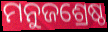
ମନୁଜଶ୍ରେଷ୍ଠ